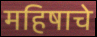
महिषाचे